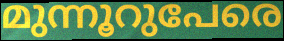
മുന്നൂറുപേരെ